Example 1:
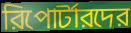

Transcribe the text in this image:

রিপোর্টারদের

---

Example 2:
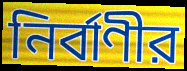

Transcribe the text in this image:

নির্বাণীর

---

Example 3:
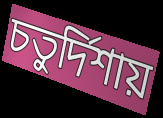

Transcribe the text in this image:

চতুর্দিশায়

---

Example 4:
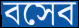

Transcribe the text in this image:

বসেব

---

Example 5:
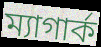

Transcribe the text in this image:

ম্যাগার্ক